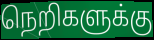
நெறிகளுக்கு